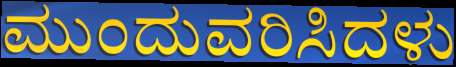
ಮುಂದುವರಿಸಿದಳು